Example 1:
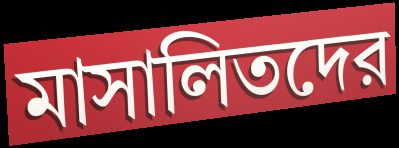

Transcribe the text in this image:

মাসালিতদের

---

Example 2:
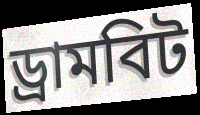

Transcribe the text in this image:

ড্রামবিট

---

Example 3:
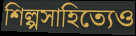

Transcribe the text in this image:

শিল্পসাহিত্যেও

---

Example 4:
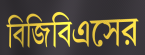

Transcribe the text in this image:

বিজিবিএসের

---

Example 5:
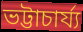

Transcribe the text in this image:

ভট্টাচার্য্য